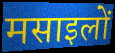
मसाइलों